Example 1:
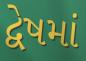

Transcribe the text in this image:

દ્વેષમાં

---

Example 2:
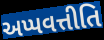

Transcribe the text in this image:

અપ્પવત્તીતિ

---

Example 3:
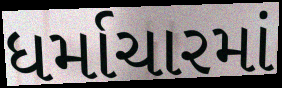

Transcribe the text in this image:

ધર્માચારમાં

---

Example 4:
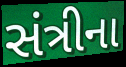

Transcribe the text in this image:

સંત્રીના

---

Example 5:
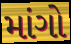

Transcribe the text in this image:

માંગો